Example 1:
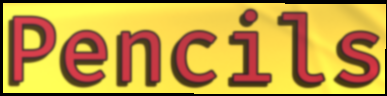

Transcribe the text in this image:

Pencils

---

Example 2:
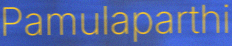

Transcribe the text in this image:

Pamulaparthi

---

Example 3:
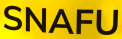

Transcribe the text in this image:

SNAFU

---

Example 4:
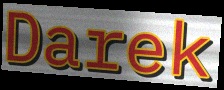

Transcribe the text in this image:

Darek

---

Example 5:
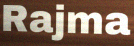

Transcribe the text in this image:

Rajma